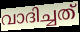
വാദിച്ചത്